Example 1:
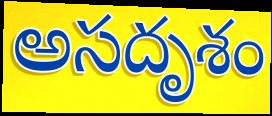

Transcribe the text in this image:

అసదృశం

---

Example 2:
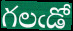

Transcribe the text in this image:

గలఁడో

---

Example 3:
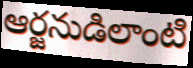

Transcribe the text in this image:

ఆర్జనుడిలాంటి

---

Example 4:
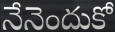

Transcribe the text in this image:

నేనెందుకో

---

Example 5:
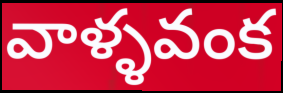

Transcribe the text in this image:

వాళ్ళవంక